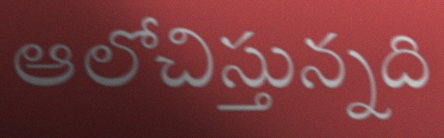
ఆలోచిస్తున్నది